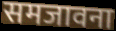
समजावना